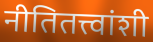
नीतितत्त्वांशी